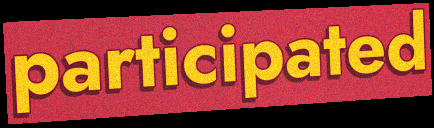
participated